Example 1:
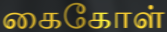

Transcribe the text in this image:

கைகோள்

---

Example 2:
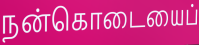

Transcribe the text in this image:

நன்கொடையைப்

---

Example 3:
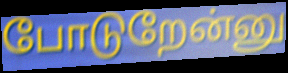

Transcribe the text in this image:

போடுறேன்னு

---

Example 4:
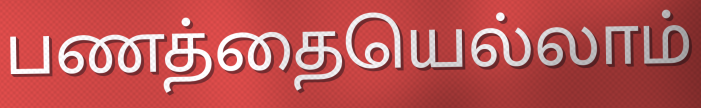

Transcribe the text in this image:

பணத்தையெல்லாம்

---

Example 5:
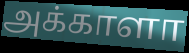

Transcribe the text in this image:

அக்காளா